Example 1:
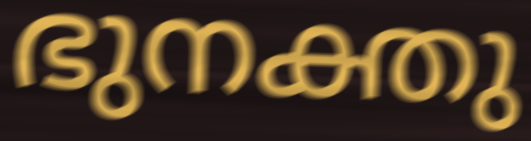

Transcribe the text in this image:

ഭുനക്തു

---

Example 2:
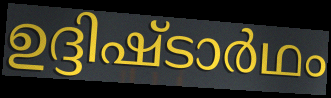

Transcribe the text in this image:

ഉദ്ദിഷ്ടാർഥം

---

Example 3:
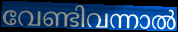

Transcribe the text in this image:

വേണ്ടിവന്നാൽ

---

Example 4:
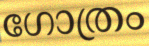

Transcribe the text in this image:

ഗോത്രം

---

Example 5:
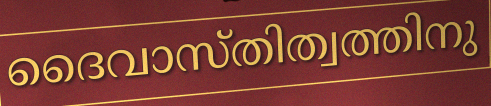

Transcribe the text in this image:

ദൈവാസ്തിത്വത്തിനു